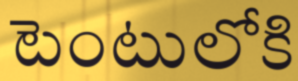
టెంటులోకి